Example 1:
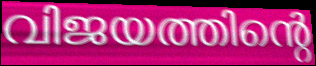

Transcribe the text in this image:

വിജയത്തിന്റെ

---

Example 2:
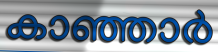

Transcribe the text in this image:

കാഞ്ഞാർ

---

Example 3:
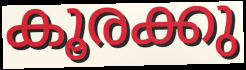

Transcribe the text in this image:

കൂരക്കു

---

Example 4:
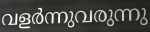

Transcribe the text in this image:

വളർന്നുവരുന്നു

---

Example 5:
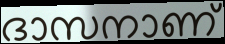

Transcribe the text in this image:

ദാസനാണ്